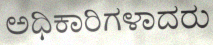
ಅಧಿಕಾರಿಗಳಾದರು